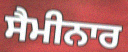
ਸੈਮੀਨਾਰ